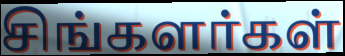
சிங்களர்கள்